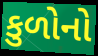
કુળોનો